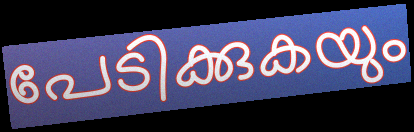
പേടിക്കുകയും